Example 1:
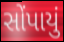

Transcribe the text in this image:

સોંપાયું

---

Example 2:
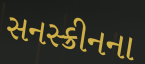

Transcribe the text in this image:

સનસ્ક્રીનના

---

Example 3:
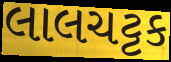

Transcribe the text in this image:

લાલચટ્ટક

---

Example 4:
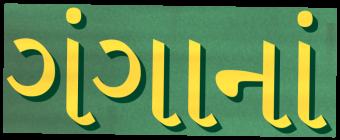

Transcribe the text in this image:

ગંગાનાં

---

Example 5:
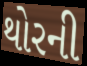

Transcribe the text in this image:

થોરની